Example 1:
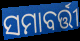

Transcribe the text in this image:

ସମାବର୍ତ୍ତୀ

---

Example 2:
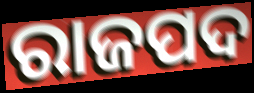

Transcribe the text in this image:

ରାଜପଦ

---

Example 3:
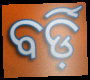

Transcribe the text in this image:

ବର୍ଡ଼ି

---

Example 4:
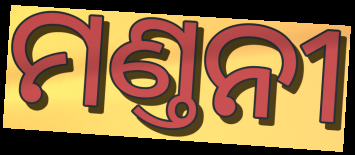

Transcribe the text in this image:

ମଣ୍ତନୀ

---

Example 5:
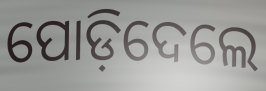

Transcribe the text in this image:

ପୋଡ଼ିଦେଲେ